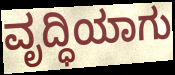
ವೃದ್ಧಿಯಾಗು